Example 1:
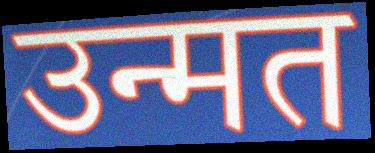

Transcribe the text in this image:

उन्मत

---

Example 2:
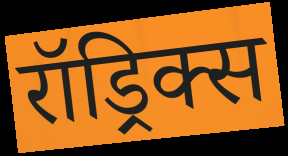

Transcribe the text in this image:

रॉड्रिक्स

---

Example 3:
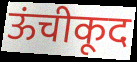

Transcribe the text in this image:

ऊंचीकूद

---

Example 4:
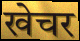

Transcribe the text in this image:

खेचर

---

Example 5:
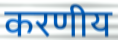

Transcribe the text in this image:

करणीय